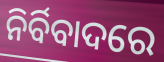
ନିର୍ବିବାଦରେ